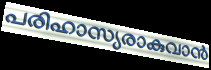
പരിഹാസ്യരാകുവാൻ